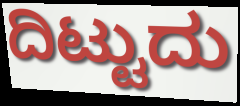
ದಿಟ್ಟುದು